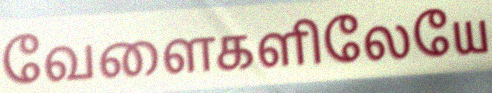
வேளைகளிலேயே